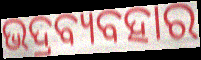
ଭଦ୍ରବ୍ୟବହାର